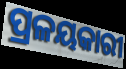
ପ୍ରଳୟକାରୀ